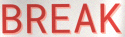
BREAK